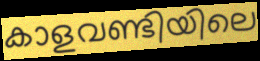
കാളവണ്ടിയിലെ